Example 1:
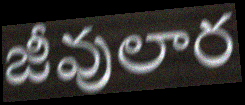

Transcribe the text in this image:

జీవులార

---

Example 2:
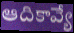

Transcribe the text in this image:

ఆదికావ్యే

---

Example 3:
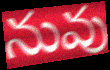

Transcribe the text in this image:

నువు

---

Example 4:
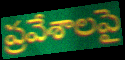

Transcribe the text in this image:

ప్రవేశాలపై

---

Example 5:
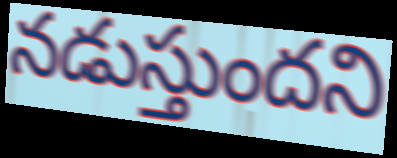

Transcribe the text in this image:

నడుస్తుందని